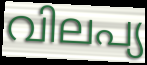
വിലപ്യ